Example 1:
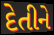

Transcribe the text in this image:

દેતીને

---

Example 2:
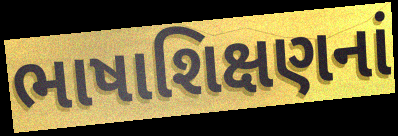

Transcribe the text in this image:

ભાષાશિક્ષણનાં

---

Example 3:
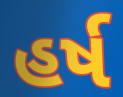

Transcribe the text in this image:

હર્ષ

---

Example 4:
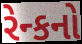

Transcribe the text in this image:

રેન્કનો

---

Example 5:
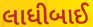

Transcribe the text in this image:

લાધીબાઈ